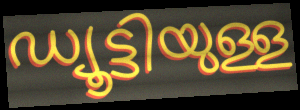
ഡ്യൂട്ടിയുള്ള